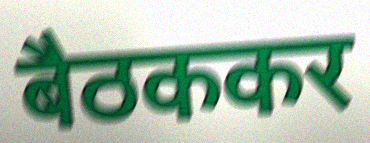
बैठककर